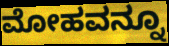
ಮೋಹವನ್ನೂ